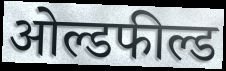
ओल्डफील्ड